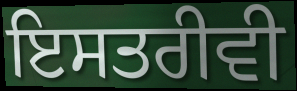
ਇਸਤਰੀਵੀ